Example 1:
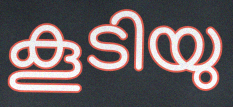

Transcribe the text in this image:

കൂടിയു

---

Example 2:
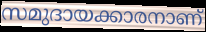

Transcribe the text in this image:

സമുദായക്കാരനാണ്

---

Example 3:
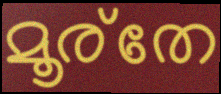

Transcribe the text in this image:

മൂര്തേ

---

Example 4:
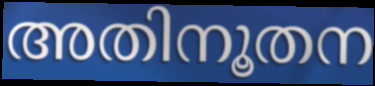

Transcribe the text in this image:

അതിനൂതന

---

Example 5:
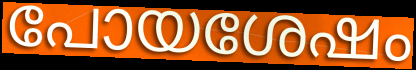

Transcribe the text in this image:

പോയശേഷം